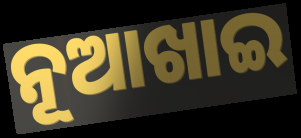
ନୂଆଖାଇ